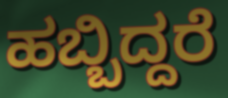
ಹಬ್ಬಿದ್ದರೆ